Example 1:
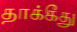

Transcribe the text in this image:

தாக்கீது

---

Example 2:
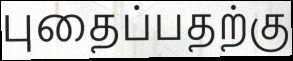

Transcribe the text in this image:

புதைப்பதற்கு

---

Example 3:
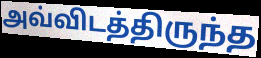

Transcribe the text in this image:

அவ்விடத்திருந்த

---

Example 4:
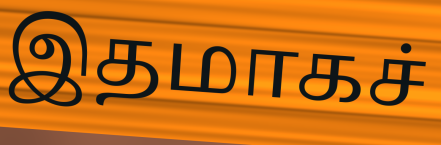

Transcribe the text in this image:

இதமாகச்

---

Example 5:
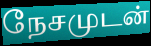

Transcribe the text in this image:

நேசமுடன்